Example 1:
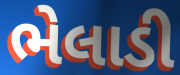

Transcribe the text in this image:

ભેલાડી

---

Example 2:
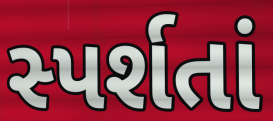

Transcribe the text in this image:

સ્પર્શતાં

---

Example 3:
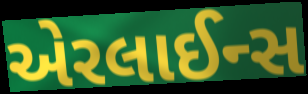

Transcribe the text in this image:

એરલાઈન્સ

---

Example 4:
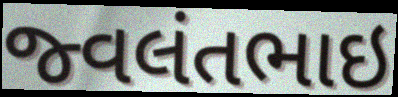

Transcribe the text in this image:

જ્વલંતભાઇ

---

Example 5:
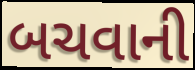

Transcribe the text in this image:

બચવાની